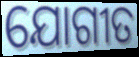
ଯୋଗୀତ